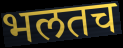
भलतच